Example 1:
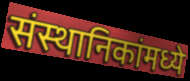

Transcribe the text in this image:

संस्थानिकांमध्ये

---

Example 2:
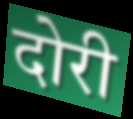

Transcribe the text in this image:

दोरी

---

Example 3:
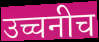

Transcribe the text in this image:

उच्चनीच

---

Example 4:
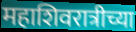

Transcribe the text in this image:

महाशिवरात्रीच्या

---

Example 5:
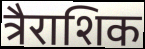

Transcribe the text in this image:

त्रैराशिक